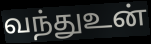
வந்துஉன்